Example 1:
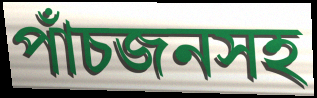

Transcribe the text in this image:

পাঁচজনসহ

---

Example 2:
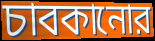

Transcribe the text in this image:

চাবকানোর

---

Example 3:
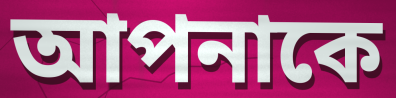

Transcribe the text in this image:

আপনাকে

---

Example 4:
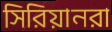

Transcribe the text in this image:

সিরিয়ানরা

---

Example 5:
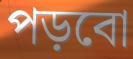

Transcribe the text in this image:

পড়বো